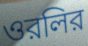
ওরলির